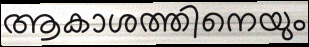
ആകാശത്തിനെയും